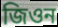
জিওন